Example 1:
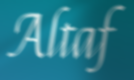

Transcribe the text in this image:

Altaf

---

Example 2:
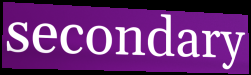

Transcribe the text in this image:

secondary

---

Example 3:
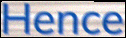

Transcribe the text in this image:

Hence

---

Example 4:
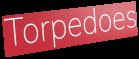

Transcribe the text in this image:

Torpedoes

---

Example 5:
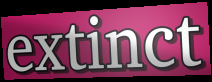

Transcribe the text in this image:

extinct